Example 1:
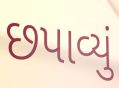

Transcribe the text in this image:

છપાવ્યું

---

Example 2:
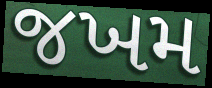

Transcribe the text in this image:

જખમ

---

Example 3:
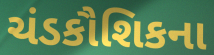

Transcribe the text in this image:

ચંડકૌશિકના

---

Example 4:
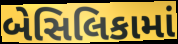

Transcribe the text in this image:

બેસિલિકામાં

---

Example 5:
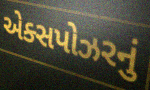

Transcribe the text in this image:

એક્સપોઝરનું